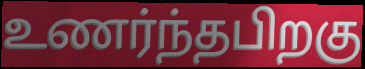
உணர்ந்தபிறகு